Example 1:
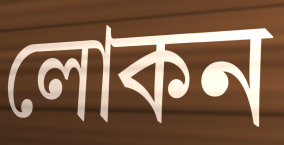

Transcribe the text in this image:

লোকন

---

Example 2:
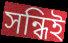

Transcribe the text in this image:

সন্ধিই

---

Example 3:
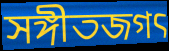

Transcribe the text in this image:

সঙ্গীতজগৎ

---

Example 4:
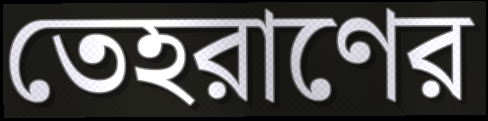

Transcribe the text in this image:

তেহরাণের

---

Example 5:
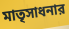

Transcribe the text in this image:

মাতৃসাধনার